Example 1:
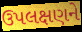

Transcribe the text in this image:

ઉપલક્ષણને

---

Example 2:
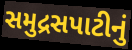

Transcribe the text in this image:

સમુદ્રસપાટીનું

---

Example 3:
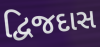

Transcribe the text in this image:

દ્વિજદાસ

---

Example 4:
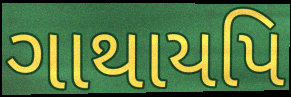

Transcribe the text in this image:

ગાથાયપિ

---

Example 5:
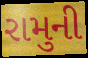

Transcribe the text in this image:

રામુની